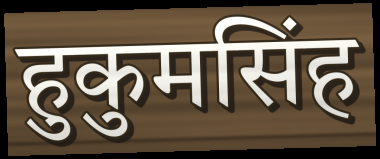
हुकुमसिंह